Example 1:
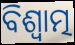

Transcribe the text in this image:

ବିଶ୍ୱାତ୍ମ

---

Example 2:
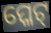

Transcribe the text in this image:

ପ୍ଳେଟ୍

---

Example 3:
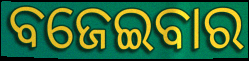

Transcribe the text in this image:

ବଜେଇବାର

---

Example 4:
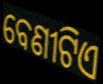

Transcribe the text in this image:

ବେଣୀଟିଏ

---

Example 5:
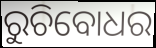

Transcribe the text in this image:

ରୁଚିବୋଧର